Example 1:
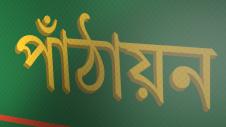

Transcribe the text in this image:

পাঁঠায়ন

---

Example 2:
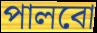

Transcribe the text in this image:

পালবো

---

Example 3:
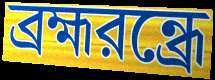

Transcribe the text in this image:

ব্রহ্মরন্ধ্রে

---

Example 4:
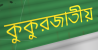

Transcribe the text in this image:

কুকুরজাতীয়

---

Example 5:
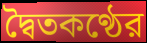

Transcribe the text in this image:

দ্বৈতকণ্ঠের